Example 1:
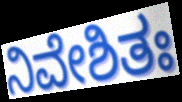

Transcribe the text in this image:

ನಿವೇಶಿತಃ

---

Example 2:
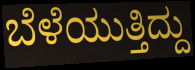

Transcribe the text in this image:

ಬೆಳೆಯುತ್ತಿದ್ದು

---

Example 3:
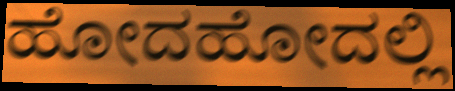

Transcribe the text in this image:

ಹೋದಹೋದಲ್ಲಿ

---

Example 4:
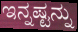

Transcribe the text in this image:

ಇನ್ನಷ್ಟನ್ನು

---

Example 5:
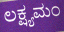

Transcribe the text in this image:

ಲಕ್ಷ್ಯಮಂ